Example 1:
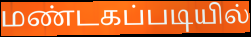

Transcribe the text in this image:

மண்டகப்படியில்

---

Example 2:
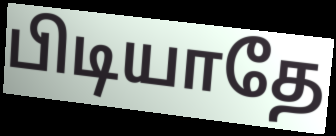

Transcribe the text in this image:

பிடியாதே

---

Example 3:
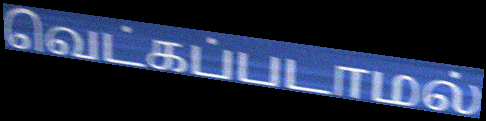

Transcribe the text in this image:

வெட்கப்படாமல்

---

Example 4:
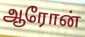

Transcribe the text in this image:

ஆரோன்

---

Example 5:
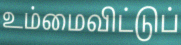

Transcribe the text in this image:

உம்மைவிட்டுப்